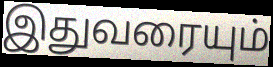
இதுவரையும்